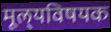
मूल्यविषयक